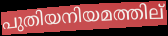
പുതിയനിയമത്തില്